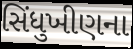
સિંધુખીણના